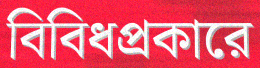
বিবিধপ্রকারে